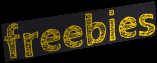
freebies